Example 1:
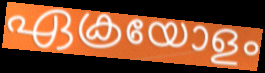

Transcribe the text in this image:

ഏക്രയോളം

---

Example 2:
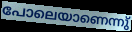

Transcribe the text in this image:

പോലെയാണെന്നു്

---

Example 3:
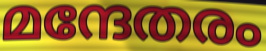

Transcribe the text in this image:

മന്ദേതരം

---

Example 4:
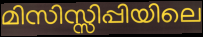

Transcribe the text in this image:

മിസിസ്സിപ്പിയിലെ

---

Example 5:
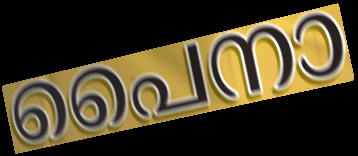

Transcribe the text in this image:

പൈനാ